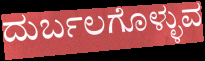
ದುರ್ಬಲಗೊಳ್ಳುವ